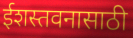
ईशस्तवनासाठी